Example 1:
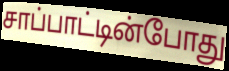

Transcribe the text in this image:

சாப்பாட்டின்போது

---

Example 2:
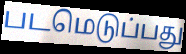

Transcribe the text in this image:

படமெடுப்பது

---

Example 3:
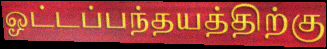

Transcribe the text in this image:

ஓட்டப்பந்தயத்திற்கு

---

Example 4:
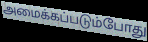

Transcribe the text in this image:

அமைக்கப்படும்போது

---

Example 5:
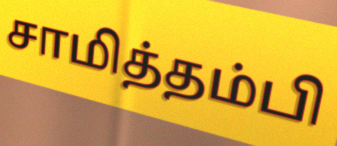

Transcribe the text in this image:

சாமித்தம்பி